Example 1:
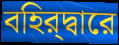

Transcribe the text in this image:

বহির্‌দ্বারে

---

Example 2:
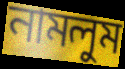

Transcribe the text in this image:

নামলুম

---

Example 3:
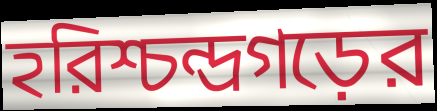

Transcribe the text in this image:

হরিশ্চন্দ্রগড়ের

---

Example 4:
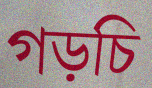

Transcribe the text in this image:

গড়চি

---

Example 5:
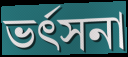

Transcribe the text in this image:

ভর্ৎসনা